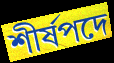
শীর্ষপদে